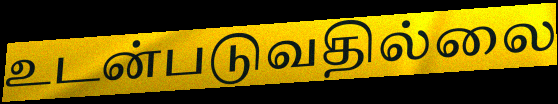
உடன்படுவதில்லை